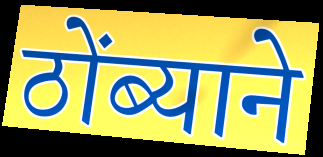
ठोंब्याने